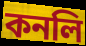
কনলি